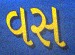
વસ